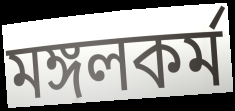
মঙ্গলকর্ম